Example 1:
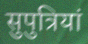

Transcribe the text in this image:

सुपुत्रियां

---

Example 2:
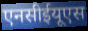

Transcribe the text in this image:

एनसीईयूएस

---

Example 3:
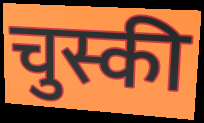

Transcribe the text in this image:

चुस्की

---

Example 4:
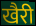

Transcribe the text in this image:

खैरी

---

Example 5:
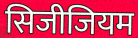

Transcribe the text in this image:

सिजीजियम